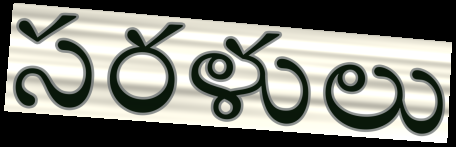
సరళులు